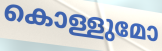
കൊള്ളുമോ